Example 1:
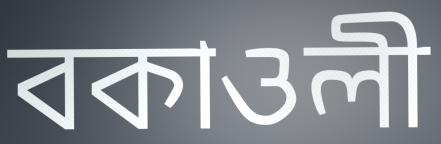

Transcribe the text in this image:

বকাওলী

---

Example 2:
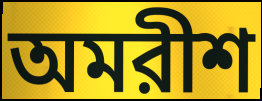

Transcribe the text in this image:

অমরীশ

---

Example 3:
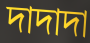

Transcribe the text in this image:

দাদাদা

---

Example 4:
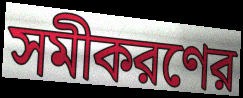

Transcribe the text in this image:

সমীকরণের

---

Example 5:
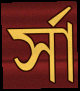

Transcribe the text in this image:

র্সা